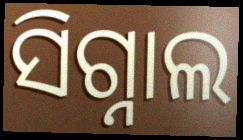
ସିଗ୍ନାଲ